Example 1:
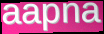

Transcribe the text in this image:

aapna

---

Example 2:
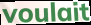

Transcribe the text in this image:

voulait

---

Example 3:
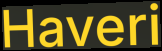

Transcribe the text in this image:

Haveri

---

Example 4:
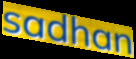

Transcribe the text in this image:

sadhan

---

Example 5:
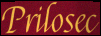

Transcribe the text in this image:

Prilosec